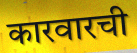
कारवारची